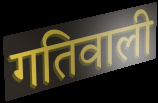
गतिवाली